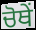
ਚੋਥੇਂ